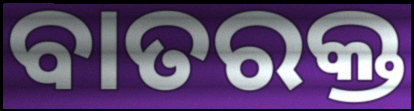
ବାତରକ୍ତ